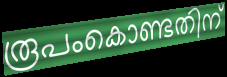
രൂപംകൊണ്ടതിന്